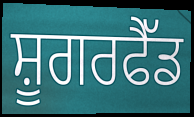
ਸ਼ੂਗਰਫੈੱਡ